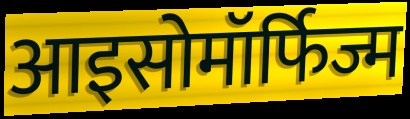
आइसोमॉर्फिज्म